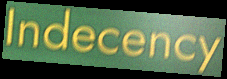
Indecency